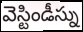
వెస్టిండీస్ను